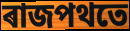
ৰাজপথতে